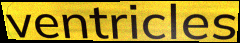
ventricles